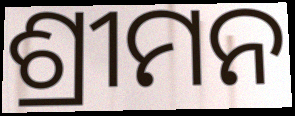
ଶ୍ରୀମନ